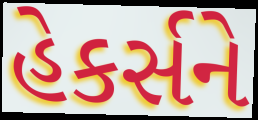
હેકર્સને